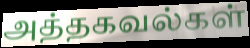
அத்தகவல்கள்